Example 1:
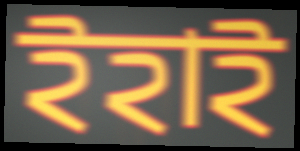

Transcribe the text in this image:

ইহাই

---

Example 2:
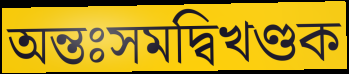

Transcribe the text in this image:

অন্তঃসমদ্বিখণ্ডক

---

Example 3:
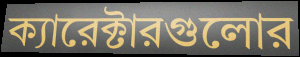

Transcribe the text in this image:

ক্যারেক্টারগুলোর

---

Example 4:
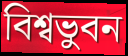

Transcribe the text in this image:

বিশ্বভুবন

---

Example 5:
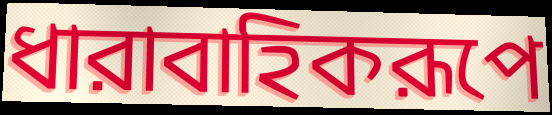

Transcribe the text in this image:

ধারাবাহিকরূপে